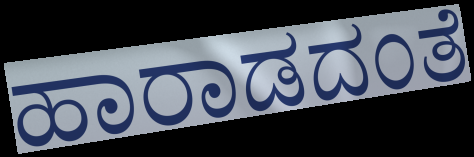
ಹಾರಾಡದಂತೆ